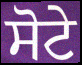
ਸੋਟੇ